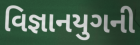
વિજ્ઞાનયુગની